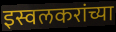
इस्वलकरांच्या